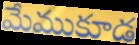
మేముకూడ